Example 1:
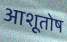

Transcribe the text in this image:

आशूतोष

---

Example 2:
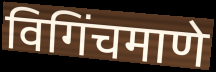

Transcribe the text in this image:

विगिंचमाणे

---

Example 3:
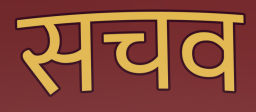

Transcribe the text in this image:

सचव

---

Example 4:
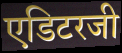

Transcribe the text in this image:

एडिटरजी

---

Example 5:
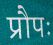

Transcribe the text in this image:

प्रौपः